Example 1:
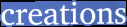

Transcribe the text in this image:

creations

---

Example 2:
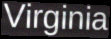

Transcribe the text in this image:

Virginia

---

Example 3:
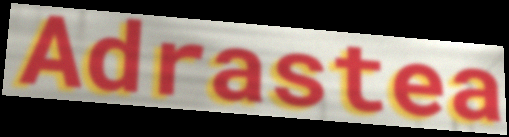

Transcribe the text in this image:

Adrastea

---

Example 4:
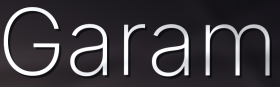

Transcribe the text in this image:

Garam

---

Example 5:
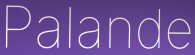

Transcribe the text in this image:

Palande